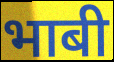
भाबी